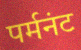
पर्मनंट